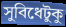
সুবিধেটুকু